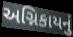
અગ્નિકાયનું